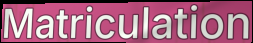
Matriculation